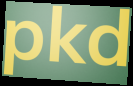
pkd